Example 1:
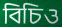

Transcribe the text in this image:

বিচিও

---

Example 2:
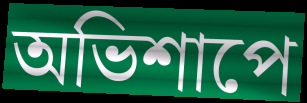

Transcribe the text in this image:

অভিশাপে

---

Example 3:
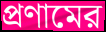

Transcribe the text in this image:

প্রণামের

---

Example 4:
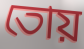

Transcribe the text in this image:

তোয়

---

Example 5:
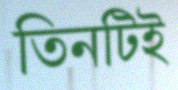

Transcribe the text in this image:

তিনটিই